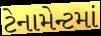
ટેનામેન્ટમાં